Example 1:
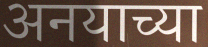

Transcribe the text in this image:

अनयाच्या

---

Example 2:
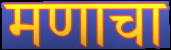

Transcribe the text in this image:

मणाचा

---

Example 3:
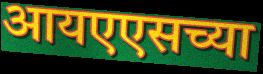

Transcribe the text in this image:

आयएएसच्या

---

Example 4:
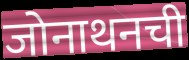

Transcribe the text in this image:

जोनाथनची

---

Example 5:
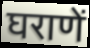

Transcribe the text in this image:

घराणें